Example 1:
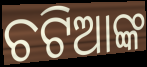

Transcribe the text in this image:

ଚଟିଆଙ୍କ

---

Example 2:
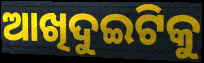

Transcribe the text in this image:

ଆଖିଦୁଇଟିକୁ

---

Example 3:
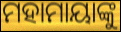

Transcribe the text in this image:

ମହାମାୟାଙ୍କୁ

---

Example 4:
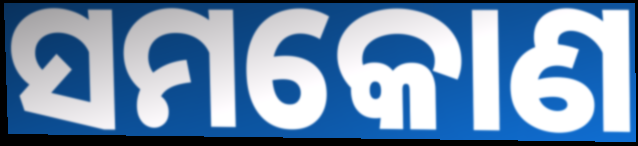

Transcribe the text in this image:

ସମକୋଣ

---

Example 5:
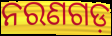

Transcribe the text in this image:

ନରଣଗଡ଼